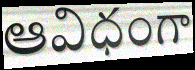
ఆవిధంగా